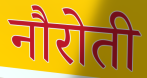
नौरोती